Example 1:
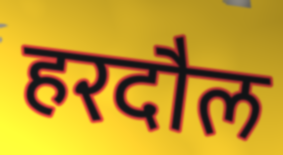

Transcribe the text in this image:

हरदौल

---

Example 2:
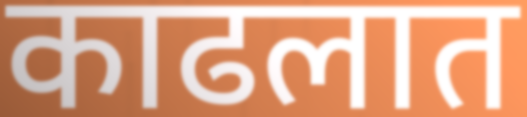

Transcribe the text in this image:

काढलात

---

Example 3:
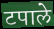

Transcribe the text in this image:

टपाले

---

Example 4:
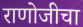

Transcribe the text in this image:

राणोजीचा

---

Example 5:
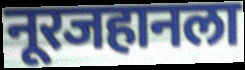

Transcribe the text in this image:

नूरजहानला